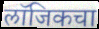
लॉजिकचा